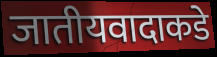
जातीयवादाकडे